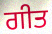
ਗੀਤ